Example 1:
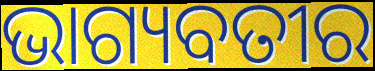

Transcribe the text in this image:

ଭାଗ୍ୟବତୀର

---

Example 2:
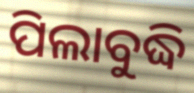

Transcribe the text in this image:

ପିଲାବୁଦ୍ଧି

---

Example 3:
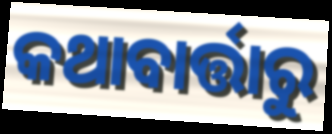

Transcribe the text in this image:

କଥାବାର୍ତ୍ତାରୁ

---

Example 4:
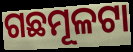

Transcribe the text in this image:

ଗଛମୂଳଟା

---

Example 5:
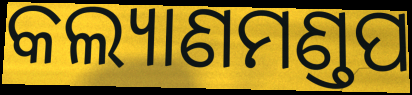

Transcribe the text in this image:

କଲ୍ୟାଣମଣ୍ଡପ